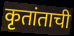
कृतांताची